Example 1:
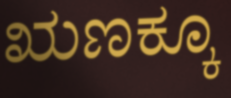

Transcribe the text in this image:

ಋಣಕ್ಕೂ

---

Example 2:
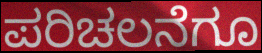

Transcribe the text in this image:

ಪರಿಚಲನೆಗೂ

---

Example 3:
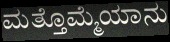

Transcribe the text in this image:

ಮತ್ತೊಮ್ಮೆಯಾನು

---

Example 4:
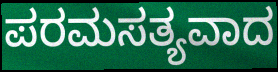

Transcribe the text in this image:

ಪರಮಸತ್ಯವಾದ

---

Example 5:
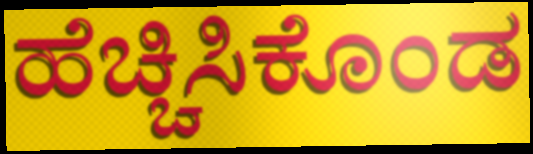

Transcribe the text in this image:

ಹೆಚ್ಚಿಸಿಕೊಂಡ